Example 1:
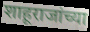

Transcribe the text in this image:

शाहूराजांच्या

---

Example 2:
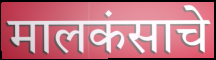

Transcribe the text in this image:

मालकंसाचे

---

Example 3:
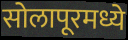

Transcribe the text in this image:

सोलापूरमध्ये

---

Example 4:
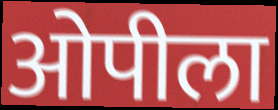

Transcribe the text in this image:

ओपीला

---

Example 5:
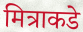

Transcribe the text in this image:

मित्राकडे